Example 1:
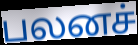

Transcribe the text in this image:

பலனச்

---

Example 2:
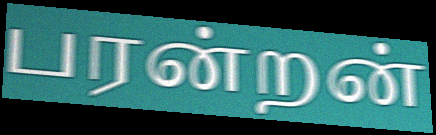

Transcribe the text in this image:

பரன்றன்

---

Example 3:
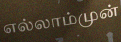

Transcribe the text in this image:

எல்லாம்முன்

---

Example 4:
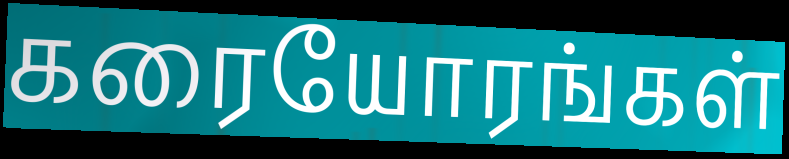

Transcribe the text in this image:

கரையோரங்கள்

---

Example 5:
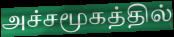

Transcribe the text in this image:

அச்சமூகத்தில்